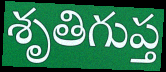
శృతిగుప్త